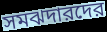
সমঝদারদের